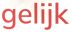
gelijk